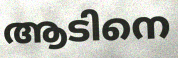
ആടിനെ